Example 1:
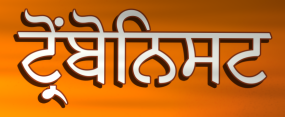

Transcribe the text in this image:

ਟ੍ਰੋਂਬੋਨਿਸਟ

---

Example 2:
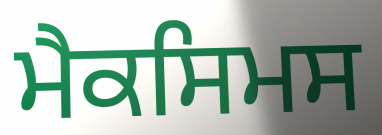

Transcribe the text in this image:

ਮੈਕਸਿਮਸ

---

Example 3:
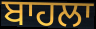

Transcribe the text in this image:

ਬਾਹਲਾ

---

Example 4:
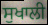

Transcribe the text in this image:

ਸੁਖਾਲੀ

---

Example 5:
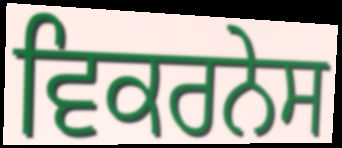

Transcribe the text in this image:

ਵਿਕਰਨੇਸ